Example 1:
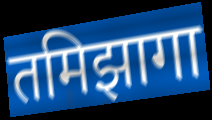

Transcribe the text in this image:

तमिझागा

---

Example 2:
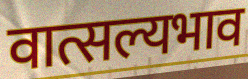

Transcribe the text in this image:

वात्सल्यभाव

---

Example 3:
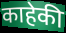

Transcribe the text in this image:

काहेकी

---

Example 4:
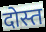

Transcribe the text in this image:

दोस्‍त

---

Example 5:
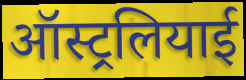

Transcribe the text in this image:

ऑस्ट्रलियाई